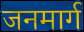
जनमार्ग